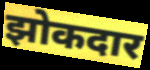
झोकदार